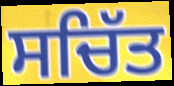
ਸਚਿੱਤ